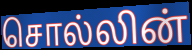
சொல்லின்